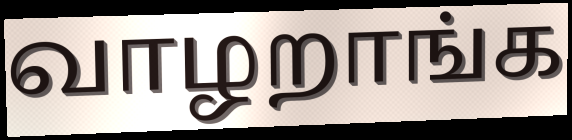
வாழறாங்க